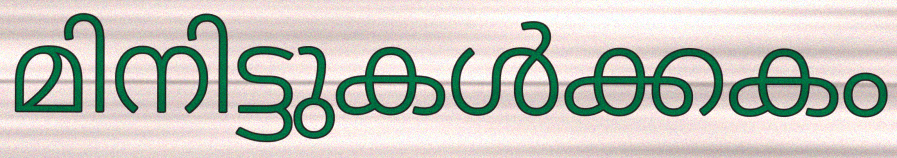
മിനിട്ടുകൾക്കകം